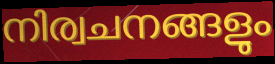
നിര്വചനങ്ങളും